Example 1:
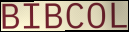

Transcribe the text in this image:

BIBCOL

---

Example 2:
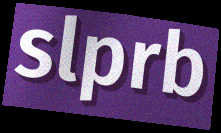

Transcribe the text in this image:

slprb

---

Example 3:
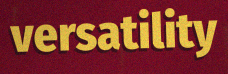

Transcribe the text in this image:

versatility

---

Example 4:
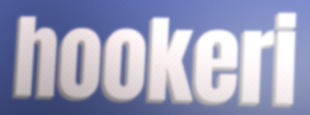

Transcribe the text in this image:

hookeri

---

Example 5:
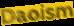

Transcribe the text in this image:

Daoism